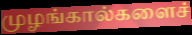
முழங்கால்களைச்